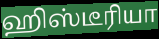
ஹிஸ்டீரியா